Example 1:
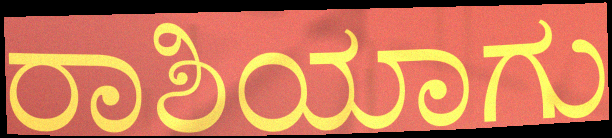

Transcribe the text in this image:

ರಾಶಿಯಾಗು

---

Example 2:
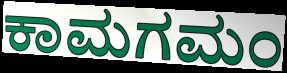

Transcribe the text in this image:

ಕಾಮಗಮಂ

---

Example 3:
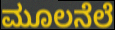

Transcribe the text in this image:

ಮೂಲನೆಲೆ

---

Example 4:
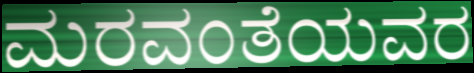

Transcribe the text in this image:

ಮರವಂತೆಯವರ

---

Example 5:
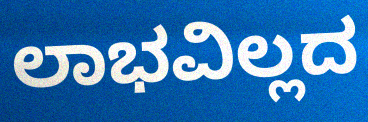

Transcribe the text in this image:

ಲಾಭವಿಲ್ಲದ